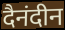
दैनंदीन